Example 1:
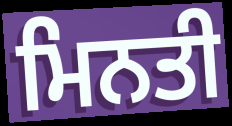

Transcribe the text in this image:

ਮਿਨਤੀ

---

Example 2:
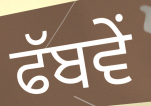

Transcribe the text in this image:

ਫੱਬਵੇਂ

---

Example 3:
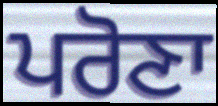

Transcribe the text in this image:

ਪਰੋਣਾ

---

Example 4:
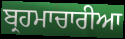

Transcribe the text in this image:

ਬ੍ਰਹਮਾਚਾਰੀਆ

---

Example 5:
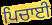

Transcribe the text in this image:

ਪਿਚਾਈ